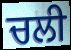
ਚਲੀ